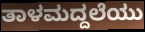
ತಾಳಮದ್ದಲೆಯು